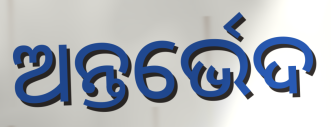
ଅନ୍ତର୍ଭେଦ